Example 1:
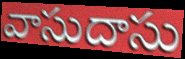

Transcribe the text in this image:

వాసుదాసు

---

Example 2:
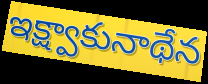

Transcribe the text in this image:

ఇక్ష్వాకునాథేన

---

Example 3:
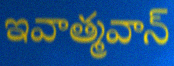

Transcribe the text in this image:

ఇవాత్మవాన్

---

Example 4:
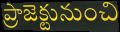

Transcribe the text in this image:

ప్రాజెక్టునుంచి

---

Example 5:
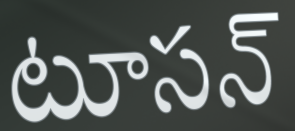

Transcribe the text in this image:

టూసన్